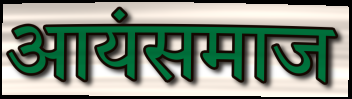
आयंसमाज